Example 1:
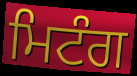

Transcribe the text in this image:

ਮਿਟੰਗ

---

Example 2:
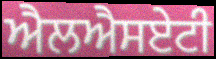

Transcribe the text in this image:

ਐਲਐਸਏਟੀ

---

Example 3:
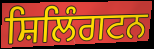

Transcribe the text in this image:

ਸ਼ਿਲਿੰਗਟਨ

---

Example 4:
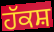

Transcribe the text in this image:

ਹੱਕਸ਼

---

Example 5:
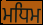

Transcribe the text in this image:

ਮਧਿਮ